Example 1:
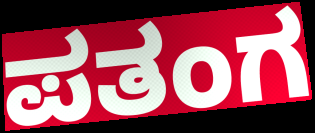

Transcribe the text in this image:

ಪತಂಗ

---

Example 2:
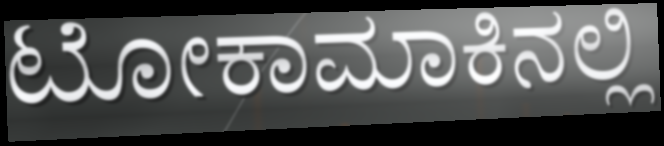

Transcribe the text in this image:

ಟೋಕಾಮಾಕಿನಲ್ಲಿ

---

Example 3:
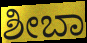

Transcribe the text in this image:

ಶೀಬಾ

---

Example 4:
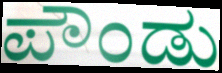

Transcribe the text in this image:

ಪೌಂಡು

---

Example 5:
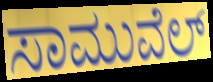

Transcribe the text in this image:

ಸಾಮುವೆಲ್